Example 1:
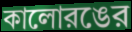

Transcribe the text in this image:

কালোরঙের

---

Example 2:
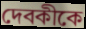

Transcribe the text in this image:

দেবকীকে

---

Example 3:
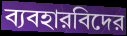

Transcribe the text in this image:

ব্যবহারবিদের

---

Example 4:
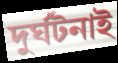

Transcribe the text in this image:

দুর্ঘটনাই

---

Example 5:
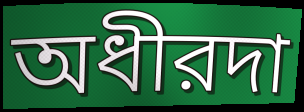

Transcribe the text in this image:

অধীরদা